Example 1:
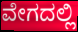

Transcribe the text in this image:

ವೇಗದಲ್ಲಿ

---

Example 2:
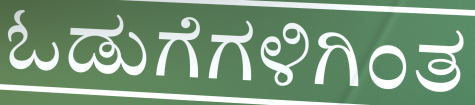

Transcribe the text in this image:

ಓಡುಗೆಗಳಿಗಿಂತ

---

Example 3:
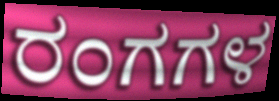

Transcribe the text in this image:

ರಂಗಗಳ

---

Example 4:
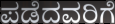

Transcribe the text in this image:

ಪಡೆದವರಿಗೆ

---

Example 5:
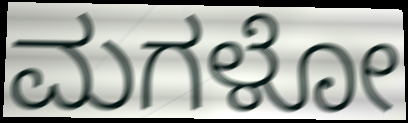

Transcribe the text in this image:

ಮಗಳೋ